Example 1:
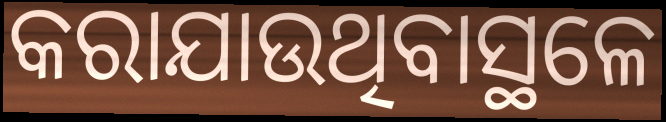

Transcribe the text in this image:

କରାଯାଉଥିବାସ୍ଥଳେ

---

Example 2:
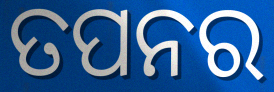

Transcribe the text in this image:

ତପନର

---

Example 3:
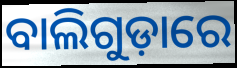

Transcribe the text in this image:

ବାଲିଗୁଡ଼ାରେ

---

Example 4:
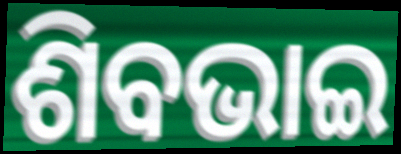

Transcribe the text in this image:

ଶିବଭାଇ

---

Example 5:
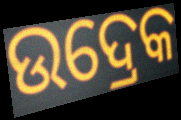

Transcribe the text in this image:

ଉଦ୍ରେକ